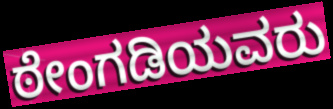
ಠೇಂಗಡಿಯವರು